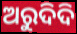
ଅରୁଦିଦି